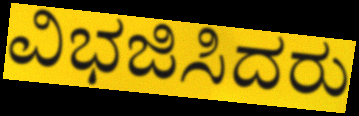
ವಿಭಜಿಸಿದರು